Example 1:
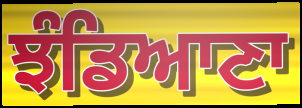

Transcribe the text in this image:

ਝੰਡਿਆਣਾ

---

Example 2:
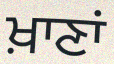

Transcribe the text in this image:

ਖ਼ਾਣਾਂ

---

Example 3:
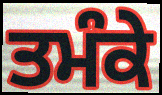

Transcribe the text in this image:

ਤਮੰਕੇ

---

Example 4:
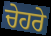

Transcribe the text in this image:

ਚੇਹਰੇ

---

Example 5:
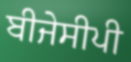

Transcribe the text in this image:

ਬੀਜੇਸੀਪੀ